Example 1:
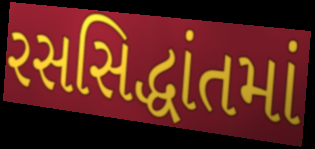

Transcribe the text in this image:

રસસિદ્ધાંતમાં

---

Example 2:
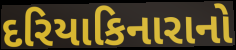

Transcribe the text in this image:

દરિયાકિનારાનો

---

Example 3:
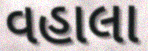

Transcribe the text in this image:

વહાલા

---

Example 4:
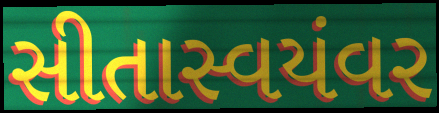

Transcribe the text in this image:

સીતાસ્વયંવર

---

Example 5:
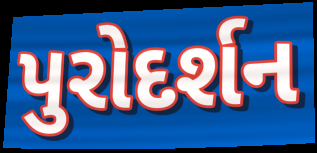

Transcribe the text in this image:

પુરોદર્શન